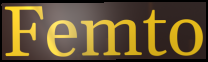
Femto